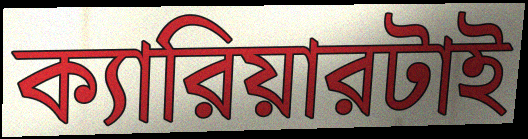
ক্যারিয়ারটাই